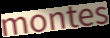
montes